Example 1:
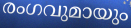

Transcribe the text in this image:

രംഗവുമായും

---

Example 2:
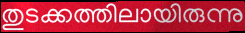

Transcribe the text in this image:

തുടക്കത്തിലായിരുന്നു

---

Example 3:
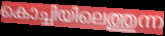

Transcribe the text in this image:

കൊച്ചിയിലെത്തുന്ന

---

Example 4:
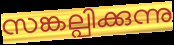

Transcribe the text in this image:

സങ്കല്പിക്കുന്നു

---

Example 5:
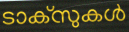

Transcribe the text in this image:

ടാക്സുകൾ